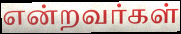
என்றவர்கள்